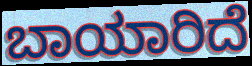
ಬಾಯಾರಿದೆ